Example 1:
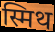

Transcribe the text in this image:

स्मिथ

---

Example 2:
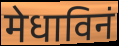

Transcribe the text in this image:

मेधाविनं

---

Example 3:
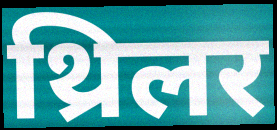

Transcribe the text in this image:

थ्रिलर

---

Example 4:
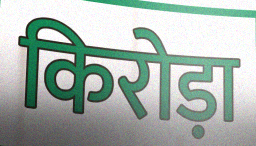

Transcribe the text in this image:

किरोड़ा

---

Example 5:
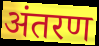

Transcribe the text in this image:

अंतरण